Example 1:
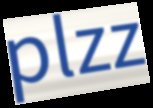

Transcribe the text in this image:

plzz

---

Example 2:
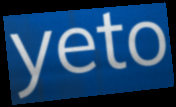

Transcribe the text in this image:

yeto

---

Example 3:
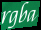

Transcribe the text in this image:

rgba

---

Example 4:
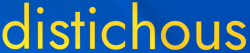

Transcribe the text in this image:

distichous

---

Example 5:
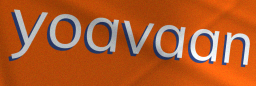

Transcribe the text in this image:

yoavaan